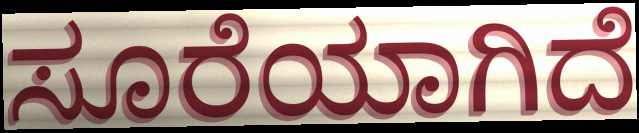
ಸೂರೆಯಾಗಿದೆ